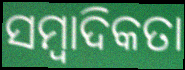
ସମ୍ବାଦିକତା